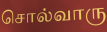
சொல்வாரு